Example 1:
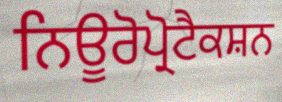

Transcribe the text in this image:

ਨਿਊਰੋਪ੍ਰੋਟੈਕਸ਼ਨ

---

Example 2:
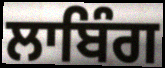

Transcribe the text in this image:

ਲਾਬਿੰਗ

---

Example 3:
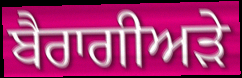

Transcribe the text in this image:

ਬੈਰਾਗੀਅੜੇ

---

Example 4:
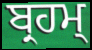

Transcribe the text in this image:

ਬ੍ਰਹਮ੍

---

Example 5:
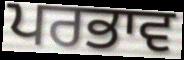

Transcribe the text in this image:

ਪਰਭਾਵ